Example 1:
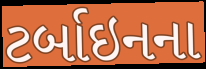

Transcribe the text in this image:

ટર્બાઇનના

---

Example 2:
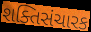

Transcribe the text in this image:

શક્તિસંચારક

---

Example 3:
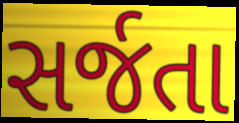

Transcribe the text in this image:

સર્જતા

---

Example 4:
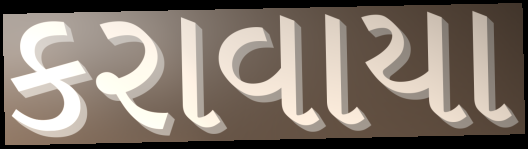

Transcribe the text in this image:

કરાવાયા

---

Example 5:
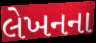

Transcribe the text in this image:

લેખનના